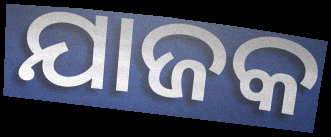
ଯାଜକ